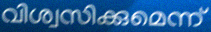
വിശ്വസിക്കുമെന്ന്